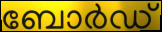
ബോർഡ്